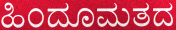
ಹಿಂದೂಮತದ